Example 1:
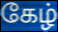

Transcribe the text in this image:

கேழ்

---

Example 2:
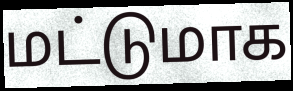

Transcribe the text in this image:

மட்டுமாக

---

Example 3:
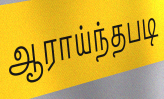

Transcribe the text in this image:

ஆராய்ந்தபடி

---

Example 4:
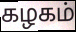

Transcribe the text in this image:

கழகம்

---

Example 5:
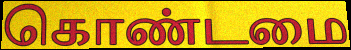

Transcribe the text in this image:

கொண்டமை